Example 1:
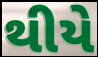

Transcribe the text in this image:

થીયે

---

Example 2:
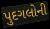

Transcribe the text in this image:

પુદગલોની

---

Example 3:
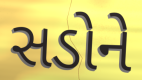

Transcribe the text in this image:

સડોને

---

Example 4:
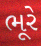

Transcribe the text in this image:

ભૂરે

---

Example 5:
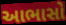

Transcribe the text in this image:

આભાસો